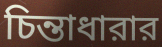
চিন্তাধারার